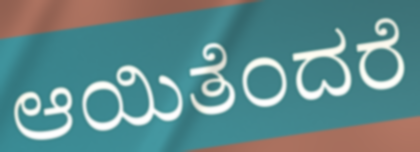
ಆಯಿತೆಂದರೆ